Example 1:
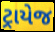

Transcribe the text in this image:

ટ્રાયેજ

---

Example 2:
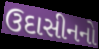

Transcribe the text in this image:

ઉદાસીનનો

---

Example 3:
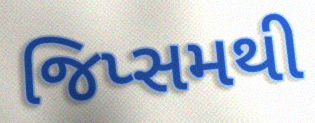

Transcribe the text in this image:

જિપ્સમથી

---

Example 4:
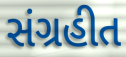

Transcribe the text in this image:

સંગ્રહીત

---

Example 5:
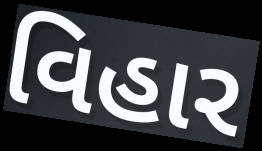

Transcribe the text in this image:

વિહાર